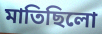
মাতিছিলো